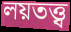
লয়তত্ত্ব